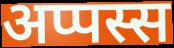
अप्पस्स